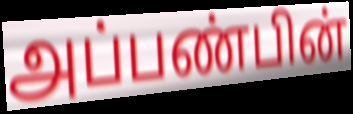
அப்பண்பின்